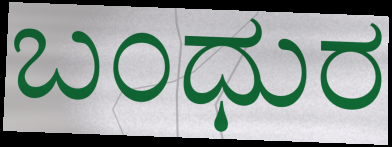
ಬಂಧುರ